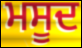
ਮਸੂਦ